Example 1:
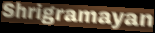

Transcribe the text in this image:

Shrigramayan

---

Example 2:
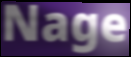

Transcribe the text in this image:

Nage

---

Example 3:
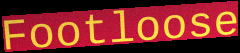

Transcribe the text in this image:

Footloose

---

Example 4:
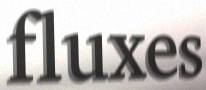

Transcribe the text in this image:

fluxes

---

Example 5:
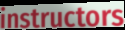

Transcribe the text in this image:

instructors